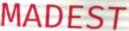
MADEST